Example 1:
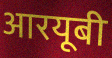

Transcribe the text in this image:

आरयूबी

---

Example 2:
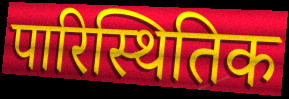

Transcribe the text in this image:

पारिस्थितिक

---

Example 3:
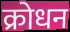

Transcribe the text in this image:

क्रोधन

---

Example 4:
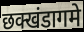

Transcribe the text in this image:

छक्खंडागमे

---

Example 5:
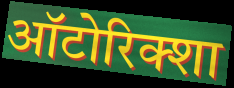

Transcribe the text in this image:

ऑटोरिक्‍शा